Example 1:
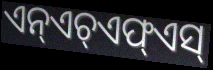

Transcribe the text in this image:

ଏନ୍ଏଚ୍ଏଫ୍ଏସ୍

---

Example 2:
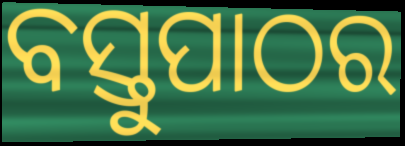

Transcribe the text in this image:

ବସ୍ତୁପାଠର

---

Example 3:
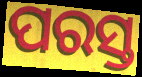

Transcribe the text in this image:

ପରସ୍ତ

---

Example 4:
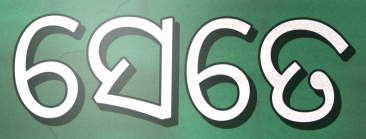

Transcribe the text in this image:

ସେତେ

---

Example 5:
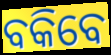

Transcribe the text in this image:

ବକିବେ